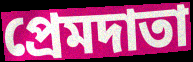
প্রেমদাতা